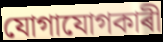
যোগাযোগকাৰী